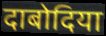
दाबोदिया